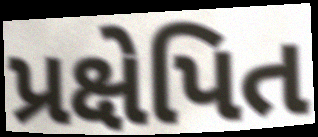
પ્રક્ષેપિત